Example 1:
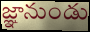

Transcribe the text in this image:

జ్ఞానుండు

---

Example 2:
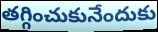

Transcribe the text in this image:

తగ్గించుకునేందుకు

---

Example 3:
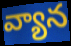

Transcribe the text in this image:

వ్యాన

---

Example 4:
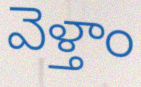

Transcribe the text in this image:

వెళ్తాం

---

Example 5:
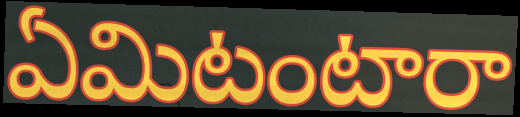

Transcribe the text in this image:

ఏమిటంటారా